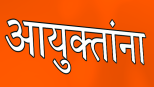
आयुक्तांना